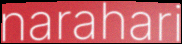
narahari